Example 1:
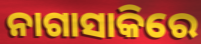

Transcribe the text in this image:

ନାଗାସାକିରେ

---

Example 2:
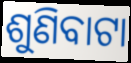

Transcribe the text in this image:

ଶୁଣିବାଟା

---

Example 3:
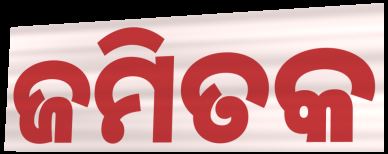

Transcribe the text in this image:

ଜମିତକ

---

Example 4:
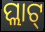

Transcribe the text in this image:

ପ୍ଲାଟ୍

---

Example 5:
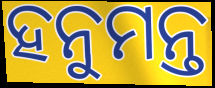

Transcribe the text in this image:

ହନୁମନ୍ତ